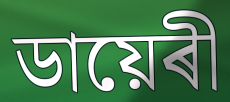
ডায়েৰী